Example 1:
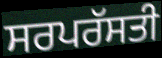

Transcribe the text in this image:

ਸਰਪਰੱਸਤੀ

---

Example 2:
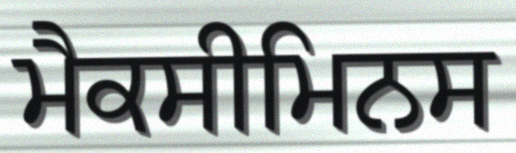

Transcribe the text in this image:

ਮੈਕਸੀਮਿਨਸ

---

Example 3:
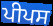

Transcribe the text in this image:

ਪੀਪਸ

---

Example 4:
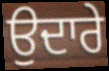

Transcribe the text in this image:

ਉਦਾਰੇ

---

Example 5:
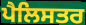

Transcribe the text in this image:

ਪੈਲਿਸਤਰ